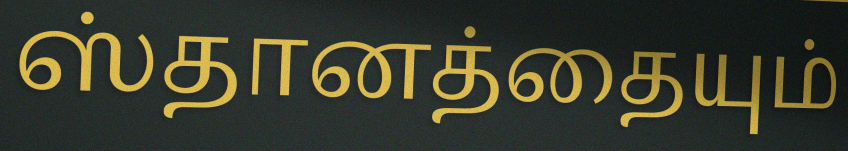
ஸ்தானத்தையும்